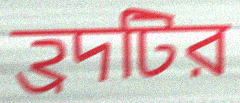
হ্রদটির